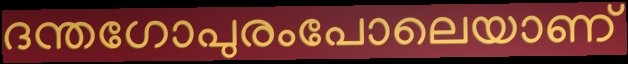
ദന്തഗോപുരംപോലെയാണ്